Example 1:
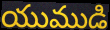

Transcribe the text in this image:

యుముడి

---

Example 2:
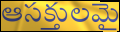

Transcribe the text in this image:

ఆసక్తులమై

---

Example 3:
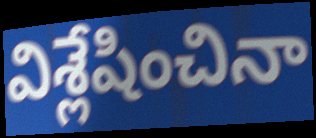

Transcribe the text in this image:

విశ్లేషించినా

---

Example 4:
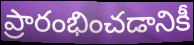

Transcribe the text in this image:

ప్రారంభించడానికీ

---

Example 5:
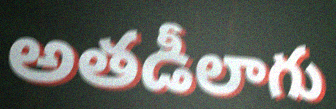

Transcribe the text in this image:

అతడీలాగు